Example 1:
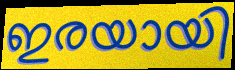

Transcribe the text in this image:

ഇരയായി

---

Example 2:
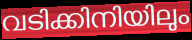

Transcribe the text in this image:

വടിക്കിനിയിലും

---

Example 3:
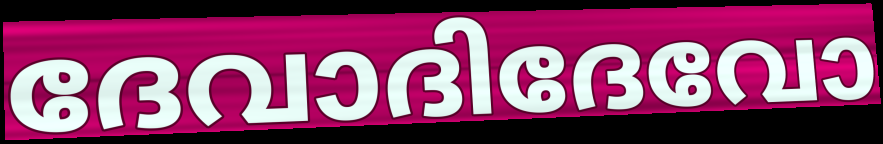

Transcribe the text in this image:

ദേവാദിദേവോ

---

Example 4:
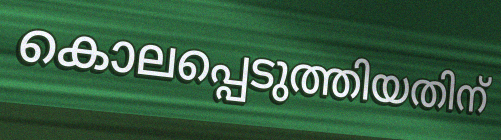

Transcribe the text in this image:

കൊലപ്പെടുത്തിയതിന്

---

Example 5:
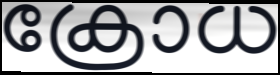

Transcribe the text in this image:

ക്രോധ